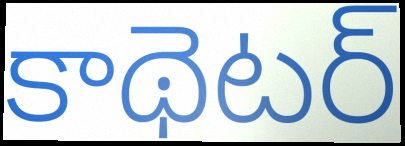
కాథెటర్